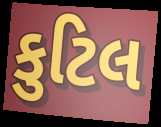
કુટિલ